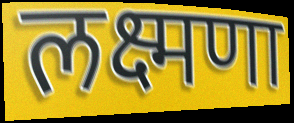
लक्ष्मणा